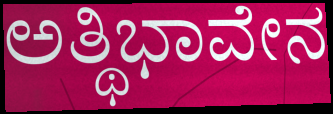
ಅತ್ಥಿಭಾವೇನ